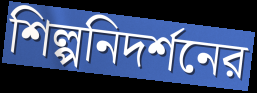
শিল্পনিদর্শনের